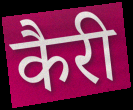
कैरी